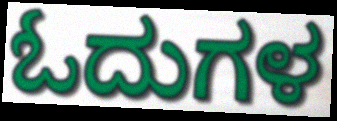
ಓದುಗಳ